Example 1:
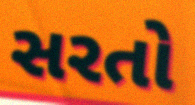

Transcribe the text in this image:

સરતો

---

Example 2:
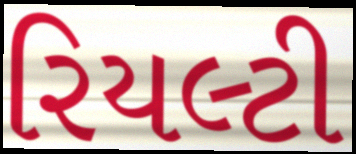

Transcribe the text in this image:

રિયલ્ટી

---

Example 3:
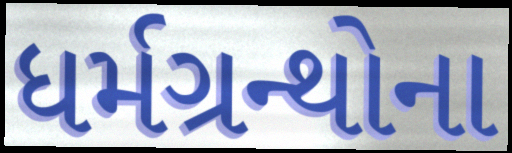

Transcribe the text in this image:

ધર્મગ્રન્થોના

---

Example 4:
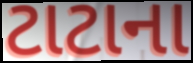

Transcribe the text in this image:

ટાટાના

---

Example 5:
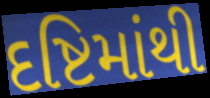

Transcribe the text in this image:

દષ્ટિમાંથી